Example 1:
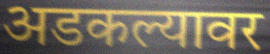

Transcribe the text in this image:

अडकल्यावर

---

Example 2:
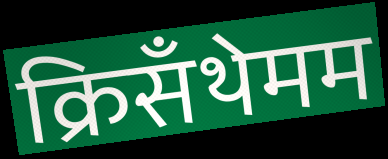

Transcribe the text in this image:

क्रिसँथेमम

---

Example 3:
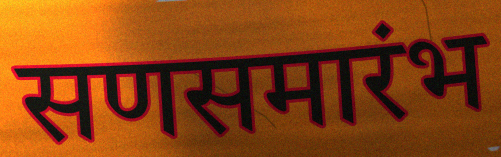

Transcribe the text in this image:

सणसमारंभ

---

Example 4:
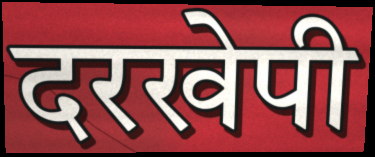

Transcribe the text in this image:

दरखेपी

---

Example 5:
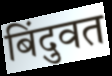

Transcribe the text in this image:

बिंदुवत